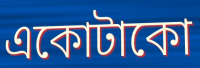
একোটাকো